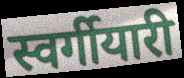
स्वर्गीयारी